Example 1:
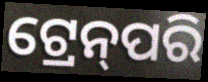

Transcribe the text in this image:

ଟ୍ରେନ୍‌ପରି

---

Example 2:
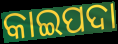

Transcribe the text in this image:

କାଇପଦା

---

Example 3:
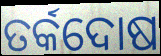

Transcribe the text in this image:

ତର୍କଦୋଷ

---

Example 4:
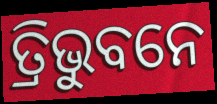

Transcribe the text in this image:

ତ୍ରିଭୁବନେ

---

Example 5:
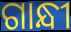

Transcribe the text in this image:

ଗାନ୍ଧୀ